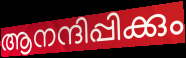
ആനന്ദിപ്പിക്കും